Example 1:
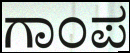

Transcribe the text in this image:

ಗಾಂಪ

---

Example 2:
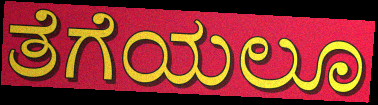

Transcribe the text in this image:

ತೆಗೆಯಲೂ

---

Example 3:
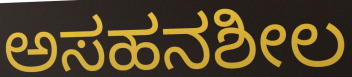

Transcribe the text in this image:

ಅಸಹನಶೀಲ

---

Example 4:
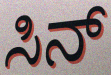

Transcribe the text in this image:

ಸಿನ್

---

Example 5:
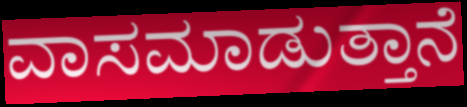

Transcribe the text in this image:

ವಾಸಮಾಡುತ್ತಾನೆ